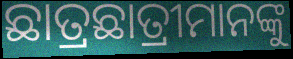
ଛାତ୍ରଛାତ୍ରୀମାନଙ୍କୁ